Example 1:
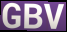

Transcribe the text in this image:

GBV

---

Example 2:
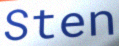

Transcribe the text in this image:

Sten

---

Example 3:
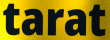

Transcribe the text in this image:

tarat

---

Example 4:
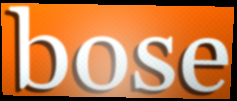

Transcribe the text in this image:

bose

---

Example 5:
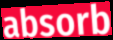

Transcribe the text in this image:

absorb